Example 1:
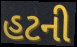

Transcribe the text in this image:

હટની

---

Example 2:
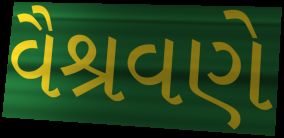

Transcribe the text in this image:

વૈશ્રવણે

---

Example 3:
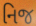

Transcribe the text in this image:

નિજ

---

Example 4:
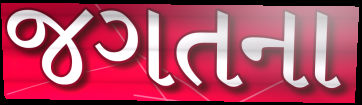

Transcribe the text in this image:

જગતના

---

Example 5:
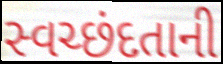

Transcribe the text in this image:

સ્વચ્છંદતાની